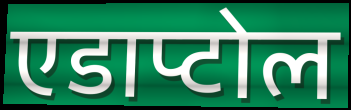
एडाप्टोल